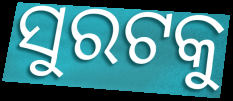
ସୁରଟକୁ